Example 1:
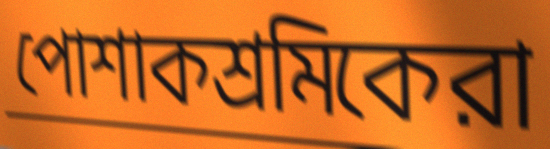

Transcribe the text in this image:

পোশাকশ্রমিকেরা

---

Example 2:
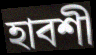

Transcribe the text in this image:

হাবশী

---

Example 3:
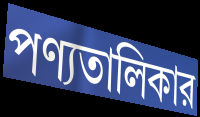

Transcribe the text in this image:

পণ্যতালিকার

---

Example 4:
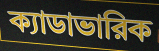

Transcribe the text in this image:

ক্যাডাভারিক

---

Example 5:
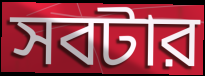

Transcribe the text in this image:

সবটার